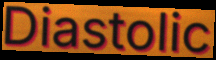
Diastolic